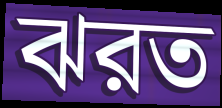
ঝরত